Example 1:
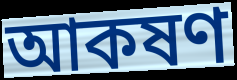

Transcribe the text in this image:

আকষণ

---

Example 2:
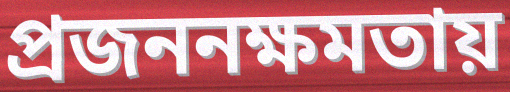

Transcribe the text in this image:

প্রজননক্ষমতায়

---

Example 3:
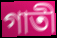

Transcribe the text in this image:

গাতী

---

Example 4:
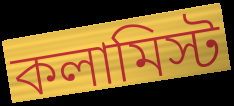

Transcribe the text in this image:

কলামিস্ট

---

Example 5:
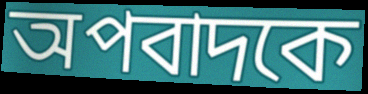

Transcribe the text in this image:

অপবাদকে